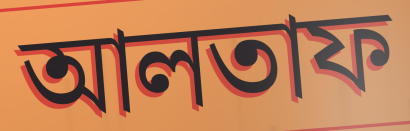
আলতাফ